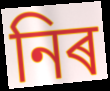
নিৰ